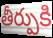
తీర్పుకి